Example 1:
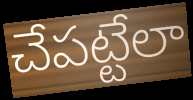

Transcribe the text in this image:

చేపట్టేలా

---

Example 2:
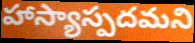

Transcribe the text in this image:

హాస్యాస్పదమని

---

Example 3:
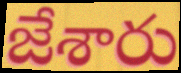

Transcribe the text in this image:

జేశారు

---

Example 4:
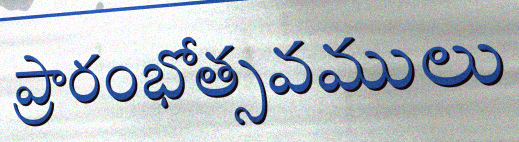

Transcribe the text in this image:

ప్రారంభోత్సవములు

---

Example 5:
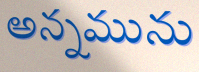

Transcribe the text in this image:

అన్నమును